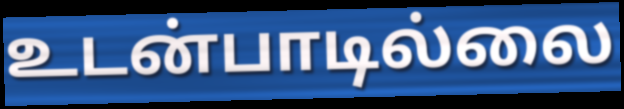
உடன்பாடில்லை